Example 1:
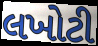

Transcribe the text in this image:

લખોટી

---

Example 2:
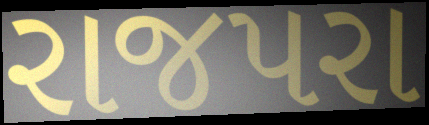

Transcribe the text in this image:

રાજપરા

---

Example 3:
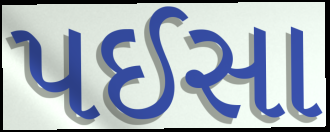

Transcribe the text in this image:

પઈસા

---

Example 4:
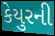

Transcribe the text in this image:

કેયુરની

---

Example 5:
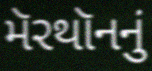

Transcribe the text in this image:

મૅરથૉનનું